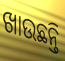
ଖାଉଛନ୍ତି